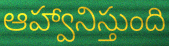
ఆహ్వానిస్తుంది